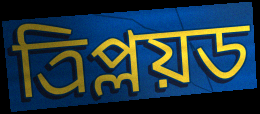
ত্রিপ্লয়ড